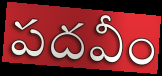
పదవీం